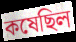
কষেছিল